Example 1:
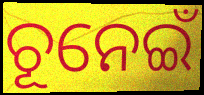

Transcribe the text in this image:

ଚୂନେଇଁ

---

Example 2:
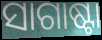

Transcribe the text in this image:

ସାଗାଷ୍ଟା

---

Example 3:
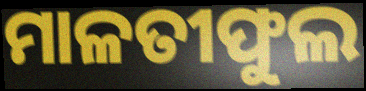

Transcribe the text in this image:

ମାଳତୀଫୁଲ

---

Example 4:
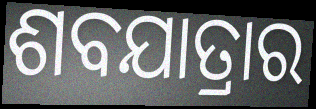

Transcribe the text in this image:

ଶବଯାତ୍ରାର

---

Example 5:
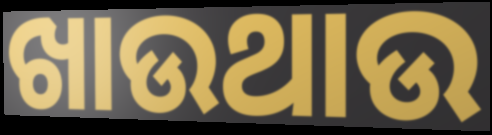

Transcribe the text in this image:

ଖାଉଥାଉ